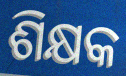
ଶିକ୍ଷକ